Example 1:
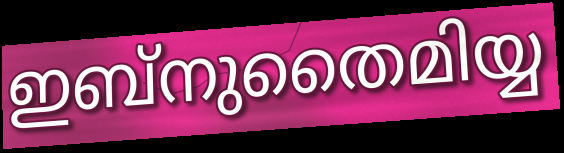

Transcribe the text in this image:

ഇബ്നുതൈമിയ്യ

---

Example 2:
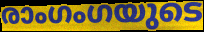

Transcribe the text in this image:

രാംഗംഗയുടെ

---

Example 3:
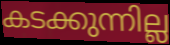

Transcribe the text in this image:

കടക്കുന്നില്ല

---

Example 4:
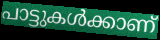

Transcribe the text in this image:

പാട്ടുകൾക്കാണ്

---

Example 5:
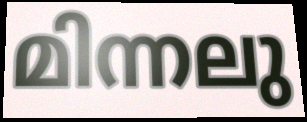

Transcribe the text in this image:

മിന്നലു